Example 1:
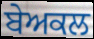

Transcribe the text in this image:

ਬੇਅਕਲ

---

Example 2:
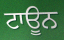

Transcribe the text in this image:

ਟਾਊਨ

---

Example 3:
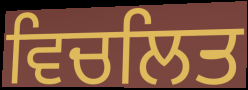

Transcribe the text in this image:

ਵਿਚਲਿਤ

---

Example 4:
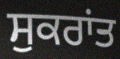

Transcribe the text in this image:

ਸੁਕਰਾਂਤ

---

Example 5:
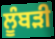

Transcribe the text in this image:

ਲੂੰਬੜੀ